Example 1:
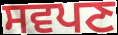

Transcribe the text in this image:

ਸਵਪਣ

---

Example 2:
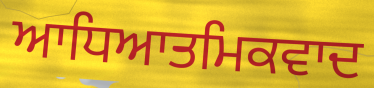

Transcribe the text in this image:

ਆਧਿਆਤਮਿਕਵਾਦ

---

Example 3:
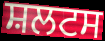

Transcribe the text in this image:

ਸ਼ਲਟਸ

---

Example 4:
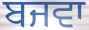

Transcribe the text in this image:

ਬਜਵਾ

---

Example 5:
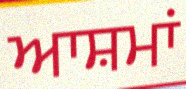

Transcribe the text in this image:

ਆਸ਼ਮਾਂ